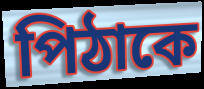
পিঠাকে